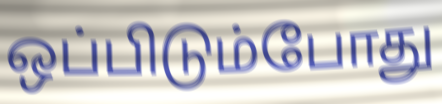
ஒப்பிடும்போது